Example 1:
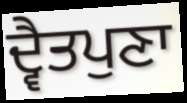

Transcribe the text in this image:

ਦ੍ਵੈਤਪੁਣਾ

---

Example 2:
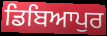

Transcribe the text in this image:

ਡਿਬਿਆਪੁਰ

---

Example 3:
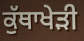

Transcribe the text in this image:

ਕੁੱਥਾਖੇੜੀ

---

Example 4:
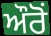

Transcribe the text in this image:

ਔਰੋਂ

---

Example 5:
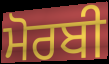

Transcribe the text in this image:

ਮੋਰਬੀ